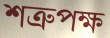
শত্রুপক্ষ